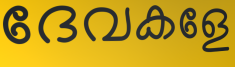
ദേവകളേ